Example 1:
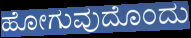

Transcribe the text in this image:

ಹೋಗುವುದೊಂದು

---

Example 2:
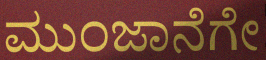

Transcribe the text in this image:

ಮುಂಜಾನೆಗೇ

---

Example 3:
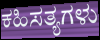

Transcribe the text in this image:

ಕಹಿಸತ್ಯಗಳು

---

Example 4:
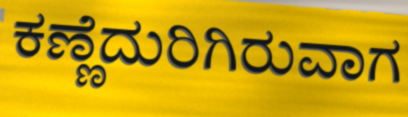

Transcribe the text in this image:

ಕಣ್ಣೆದುರಿಗಿರುವಾಗ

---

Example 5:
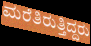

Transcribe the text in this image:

ಮರೆತಿರುತ್ತಿದ್ದರು